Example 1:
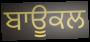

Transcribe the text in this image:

ਬਾਊਕਲ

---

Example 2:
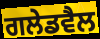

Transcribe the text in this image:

ਗਲੇਡਵੈਲ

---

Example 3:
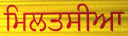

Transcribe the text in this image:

ਮਿਲਤਸੀਆ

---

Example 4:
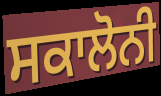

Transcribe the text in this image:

ਸਕਾਲੋਨੀ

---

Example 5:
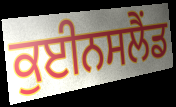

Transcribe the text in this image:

ਕੁਈਨਸਲੈਂਡ